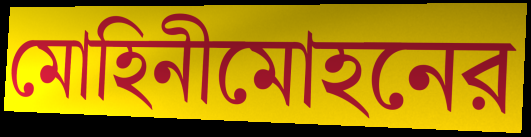
মোহিনীমোহনের